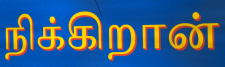
நிக்கிறான்